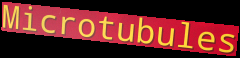
Microtubules